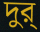
দুর্